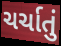
ચર્ચાતું